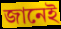
জানেই